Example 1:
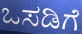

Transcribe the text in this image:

ಒಸಡಿಗೆ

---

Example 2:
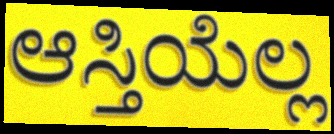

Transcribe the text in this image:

ಆಸ್ತಿಯೆಲ್ಲ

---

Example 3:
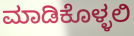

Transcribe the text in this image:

ಮಾಡಿಕೊಳ್ಳಲಿ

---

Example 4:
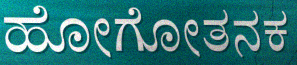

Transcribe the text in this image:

ಹೋಗೋತನಕ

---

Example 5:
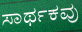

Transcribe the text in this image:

ಸಾರ್ಥಕವು